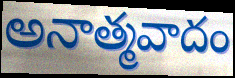
అనాత్మవాదం